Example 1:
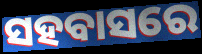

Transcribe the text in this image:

ସହବାସରେ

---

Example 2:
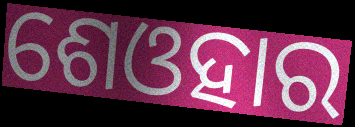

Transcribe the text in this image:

ଶେଓହାର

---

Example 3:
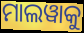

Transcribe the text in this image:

ମାଲୱାକୁ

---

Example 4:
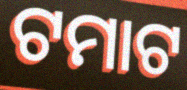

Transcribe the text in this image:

ଟମାଟ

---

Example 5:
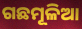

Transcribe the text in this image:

ଗଛମୂଳିଆ